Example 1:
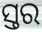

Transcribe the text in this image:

ସ୍ତର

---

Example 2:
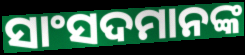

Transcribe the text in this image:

ସାଂସଦମାନଙ୍କ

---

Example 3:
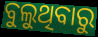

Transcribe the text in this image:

ବୁଲୁଥିବାରୁ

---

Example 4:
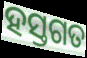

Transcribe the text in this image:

ହସ୍ତଗତ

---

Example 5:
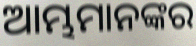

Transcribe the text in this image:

ଆମ୍ଭମାନଙ୍କର